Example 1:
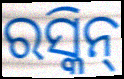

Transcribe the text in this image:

ରସ୍କିନ୍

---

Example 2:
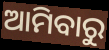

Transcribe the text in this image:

ଆମିବାରୁ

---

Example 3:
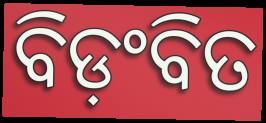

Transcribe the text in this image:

ବିଡ଼ଂବିତ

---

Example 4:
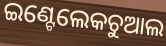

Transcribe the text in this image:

ଇଣ୍ଟେଲେକଚୁଆଲ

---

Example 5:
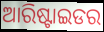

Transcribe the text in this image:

ଆରିଷ୍ଟାଇଡର